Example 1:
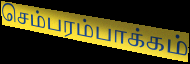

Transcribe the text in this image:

செம்பரம்பாக்கம்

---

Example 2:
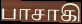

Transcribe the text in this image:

பாசாகி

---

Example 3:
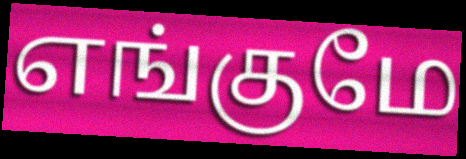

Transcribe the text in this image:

எங்குமே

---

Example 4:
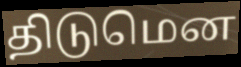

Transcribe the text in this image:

திடுமென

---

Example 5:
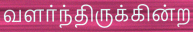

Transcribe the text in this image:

வளர்ந்திருக்கின்ற